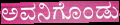
ಅವನಿಗೊಂಡು